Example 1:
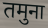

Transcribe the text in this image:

तमुना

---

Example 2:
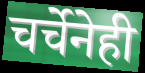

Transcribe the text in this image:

चर्चेनेही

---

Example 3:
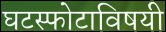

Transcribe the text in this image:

घटस्फोटाविषयी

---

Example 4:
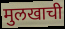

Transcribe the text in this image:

मुलखाची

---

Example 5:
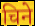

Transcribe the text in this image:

चिने